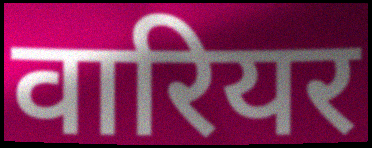
वारियर